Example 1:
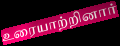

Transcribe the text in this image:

உரையாற்றினார்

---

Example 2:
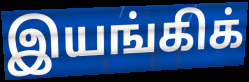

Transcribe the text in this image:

இயங்கிக்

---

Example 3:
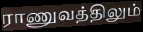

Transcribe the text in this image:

ராணுவத்திலும்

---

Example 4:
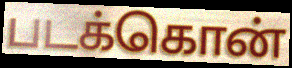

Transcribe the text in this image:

படக்கொன்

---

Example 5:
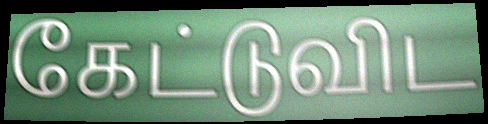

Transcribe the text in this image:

கேட்டுவிட